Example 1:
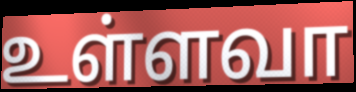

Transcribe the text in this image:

உள்ளவா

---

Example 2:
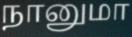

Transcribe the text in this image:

நானுமா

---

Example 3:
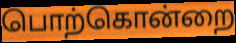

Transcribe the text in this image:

பொற்கொன்றை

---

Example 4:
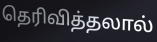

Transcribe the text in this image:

தெரிவித்தலால்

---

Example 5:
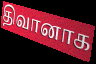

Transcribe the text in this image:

திவானாக